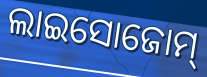
ଲାଇସୋଜୋମ୍